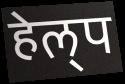
हेल्प